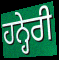
ਹਨ੍ਹੇਰੀ